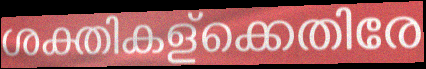
ശക്തികള്ക്കെതിരേ